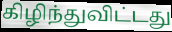
கிழிந்துவிட்டது